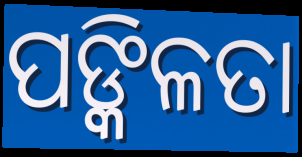
ପଙ୍କିଳତା